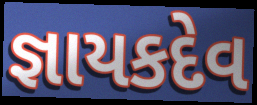
જ્ઞાયકદેવ